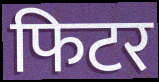
फिटर